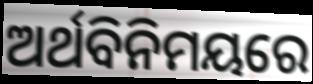
ଅର୍ଥବିନିମୟରେ